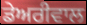
ਡੇਅਰੀਵਾਲ